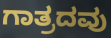
ಗಾತ್ರದವು